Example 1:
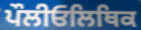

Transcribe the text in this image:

ਪੌਲੀਓਲਿਥਿਕ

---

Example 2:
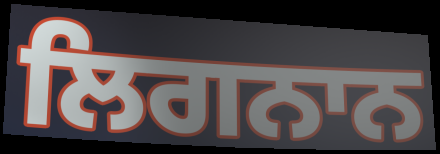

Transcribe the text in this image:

ਲਿਗਨਾਨ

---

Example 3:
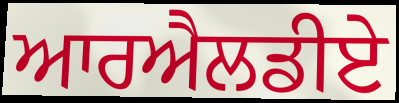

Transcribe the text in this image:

ਆਰਐਲਡੀਏ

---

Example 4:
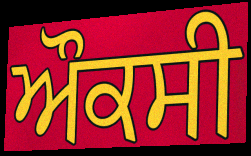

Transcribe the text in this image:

ਔਕਸੀ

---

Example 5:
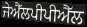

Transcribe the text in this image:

ਜੇਐੱਲਪੀਪੀਐੱਲ